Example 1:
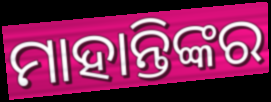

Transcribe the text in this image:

ମାହାନ୍ତିଙ୍କର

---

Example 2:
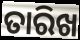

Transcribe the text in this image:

ତାରିଖ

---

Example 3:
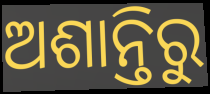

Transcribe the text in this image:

ଅଶାନ୍ତିରୁ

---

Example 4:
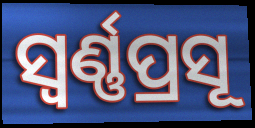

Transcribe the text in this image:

ସ୍ବର୍ଣ୍ଣପ୍ରସୂ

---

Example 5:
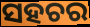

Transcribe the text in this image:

ସହଚର